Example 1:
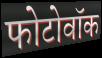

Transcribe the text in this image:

फोटोवॉक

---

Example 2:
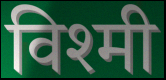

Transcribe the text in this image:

विश्मी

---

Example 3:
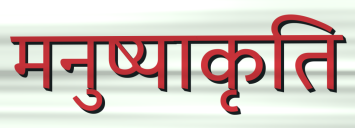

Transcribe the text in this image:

मनुष्याकृति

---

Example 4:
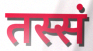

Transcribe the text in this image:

तस्सं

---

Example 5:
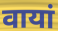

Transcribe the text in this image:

वायां